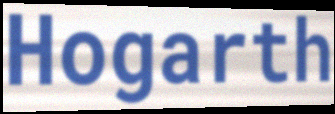
Hogarth